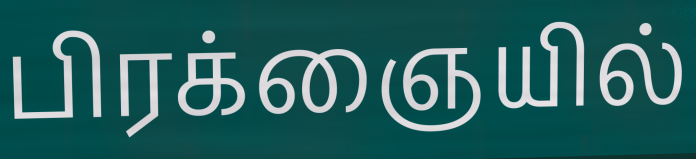
பிரக்ஞையில்